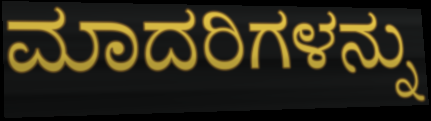
ಮಾದರಿಗಳನ್ನು